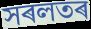
সৰলতৰ